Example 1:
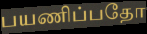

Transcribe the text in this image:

பயணிப்பதோ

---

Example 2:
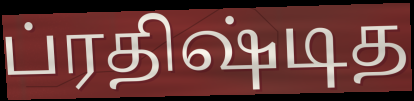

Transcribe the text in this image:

ப்ரதிஷ்டித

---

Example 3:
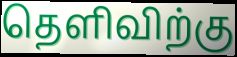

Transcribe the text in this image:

தெளிவிற்கு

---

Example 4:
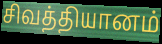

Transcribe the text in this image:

சிவத்தியானம்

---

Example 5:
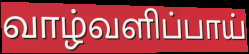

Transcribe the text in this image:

வாழ்வளிப்பாய்